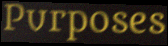
Purposes